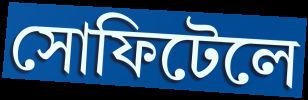
সোফিটেলে